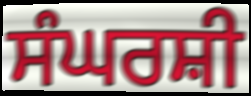
ਸੰਘਰਸ਼ੀ